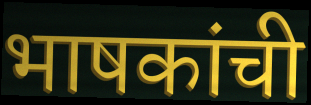
भाषकांची